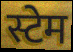
स्टेम